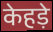
केहड़े